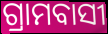
ଗ୍ରାମବାସୀ